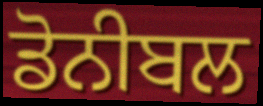
ਡੋਨੀਬਲ